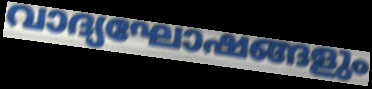
വാദ്യഘോഷങ്ങളും